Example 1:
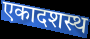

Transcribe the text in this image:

एकादशस्थ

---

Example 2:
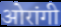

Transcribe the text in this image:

ओरांगी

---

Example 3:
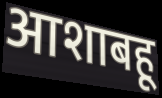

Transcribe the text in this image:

आशाबहू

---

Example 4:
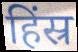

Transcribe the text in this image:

हिंस्र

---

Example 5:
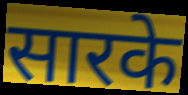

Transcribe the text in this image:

सारके